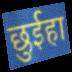
छुईहा